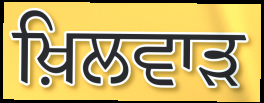
ਖ਼ਿਲਵਾੜ